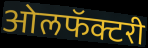
ओलफॅक्टरी